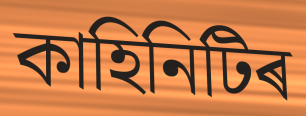
কাহিনিটিৰ